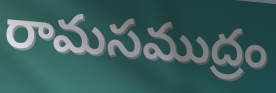
రామసముద్రం